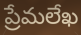
ప్రేమలేఖ